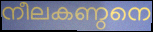
നീലകണ്ഠനെ